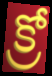
క్రో